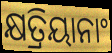
କ୍ଷତ୍ରିୟାନାଂ